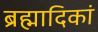
ब्रह्मादिकां